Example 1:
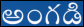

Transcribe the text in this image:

అంగడి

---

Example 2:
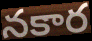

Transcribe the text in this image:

నకార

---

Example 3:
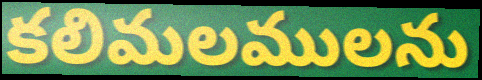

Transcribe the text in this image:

కలిమలములను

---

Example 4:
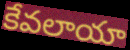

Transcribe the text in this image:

కేవలాయా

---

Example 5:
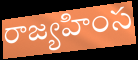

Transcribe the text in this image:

రాజ్యహింస